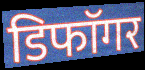
डिफॉगर